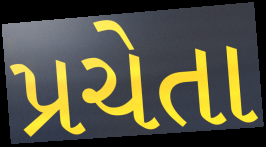
પ્રચેતા